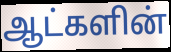
ஆட்களின்